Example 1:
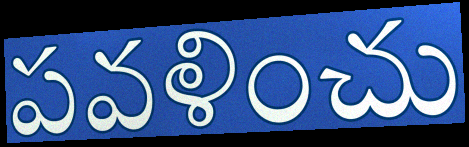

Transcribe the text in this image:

పవళించు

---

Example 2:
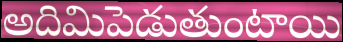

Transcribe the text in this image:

అదిమిపెడుతుంటాయి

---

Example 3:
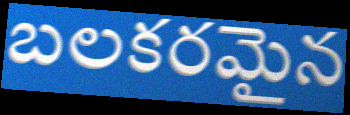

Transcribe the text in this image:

బలకరమైన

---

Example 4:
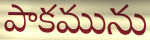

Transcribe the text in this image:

పాకమును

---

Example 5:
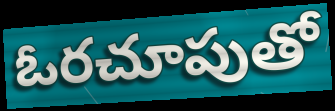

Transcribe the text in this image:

ఓరచూపుతో